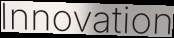
Innovation